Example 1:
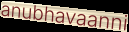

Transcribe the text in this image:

anubhavaanni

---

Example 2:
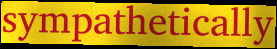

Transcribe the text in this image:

sympathetically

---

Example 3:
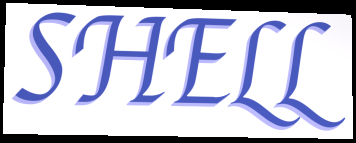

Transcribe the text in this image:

SHELL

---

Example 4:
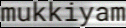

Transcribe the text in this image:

mukkiyam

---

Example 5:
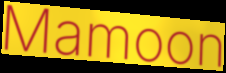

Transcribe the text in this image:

Mamoon